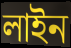
লাইন